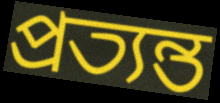
প্রত্যন্ত